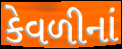
કેવળીનાં